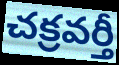
చక్రవర్తీ